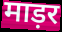
माड़र